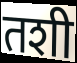
तशी